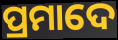
ପ୍ରମାଦେ